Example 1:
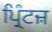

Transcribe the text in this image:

ਪ੍ਰਿੰਟਜ਼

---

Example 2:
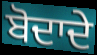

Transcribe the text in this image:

ਬੋਦਾਦੇ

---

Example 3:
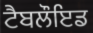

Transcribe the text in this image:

ਟੈਬਲੌਇਡ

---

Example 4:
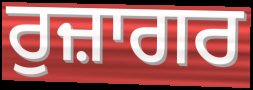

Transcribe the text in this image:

ਰੁਜ਼ਾਗਰ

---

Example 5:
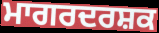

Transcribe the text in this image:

ਮਾਗਰਦਰਸ਼ਕ